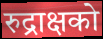
रुद्राक्षको